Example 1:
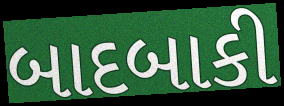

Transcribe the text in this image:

બાદબાકી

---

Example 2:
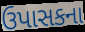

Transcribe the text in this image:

ઉપાસકના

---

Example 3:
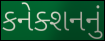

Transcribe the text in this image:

કનેક્શનનું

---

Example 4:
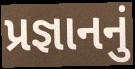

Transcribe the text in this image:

પ્રજ્ઞાનનું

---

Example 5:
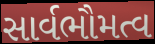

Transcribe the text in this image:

સાર્વભૌમત્વ